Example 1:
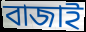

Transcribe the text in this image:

বাজাই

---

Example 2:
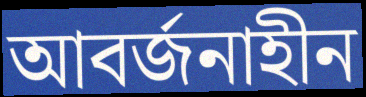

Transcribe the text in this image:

আবর্জনাহীন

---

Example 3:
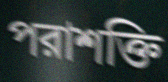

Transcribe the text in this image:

পরাশক্তি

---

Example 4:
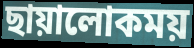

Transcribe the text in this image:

ছায়ালোকময়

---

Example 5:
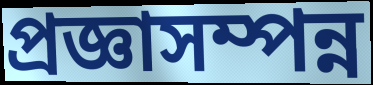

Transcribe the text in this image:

প্রজ্ঞাসম্পন্ন